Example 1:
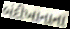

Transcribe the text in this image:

બંદીખાનાના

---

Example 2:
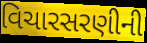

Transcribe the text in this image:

વિચારસરણીની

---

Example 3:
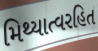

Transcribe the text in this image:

મિથ્યાત્વરહિત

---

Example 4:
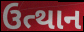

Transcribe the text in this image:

ઉત્થાન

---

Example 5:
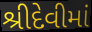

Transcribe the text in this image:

શ્રીદેવીમાં